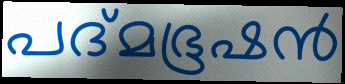
പദ്മഭൂഷൻ